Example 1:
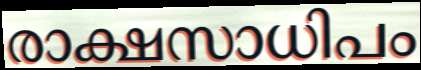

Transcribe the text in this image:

രാക്ഷസാധിപം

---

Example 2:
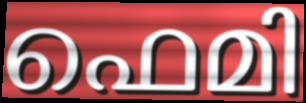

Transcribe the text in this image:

ഫെമി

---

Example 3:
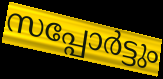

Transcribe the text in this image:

സപ്പോർട്ടും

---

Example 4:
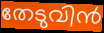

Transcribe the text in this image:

തേടുവിൻ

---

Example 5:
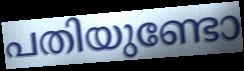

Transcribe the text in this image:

പതിയുണ്ടോ